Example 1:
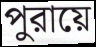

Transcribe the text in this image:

পুরায়ে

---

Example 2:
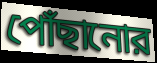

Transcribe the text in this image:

পোঁছানোর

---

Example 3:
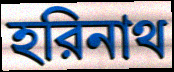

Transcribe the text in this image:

হরিনাথ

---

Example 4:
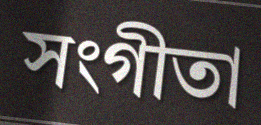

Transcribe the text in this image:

সংগীতা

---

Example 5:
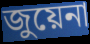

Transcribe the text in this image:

জুয়েনা